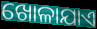
ଖୋଳାଯାଏ